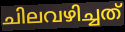
ചിലവഴിച്ചത്